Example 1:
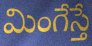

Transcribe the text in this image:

మింగేస్తే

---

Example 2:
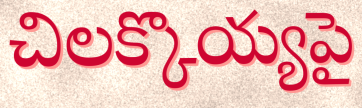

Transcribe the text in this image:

చిలక్కొయ్యపై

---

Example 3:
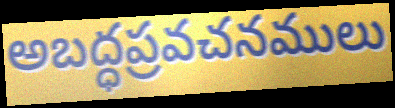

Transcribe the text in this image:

అబద్ధప్రవచనములు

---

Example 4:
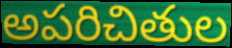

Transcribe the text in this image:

అపరిచితుల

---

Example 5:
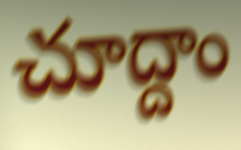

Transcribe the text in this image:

చూద్దాం